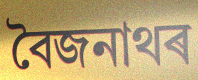
বৈজনাথৰ